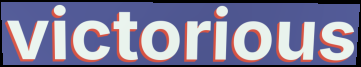
victorious